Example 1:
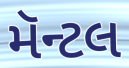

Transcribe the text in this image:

મૅન્ટલ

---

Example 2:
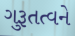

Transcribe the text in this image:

ગુરૂતત્વને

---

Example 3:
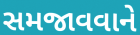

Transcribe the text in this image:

સમજાવવાને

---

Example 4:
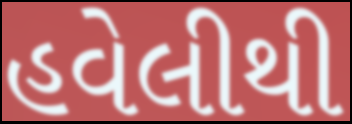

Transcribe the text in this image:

હવેલીથી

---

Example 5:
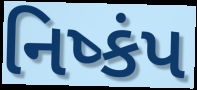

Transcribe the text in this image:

નિષ્કંપ